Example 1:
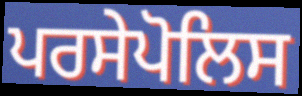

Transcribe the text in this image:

ਪਰਸੇਪੋਲਿਸ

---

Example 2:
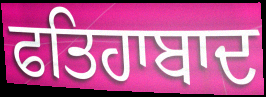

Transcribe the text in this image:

ਫਤਿਹਾਬਾਦ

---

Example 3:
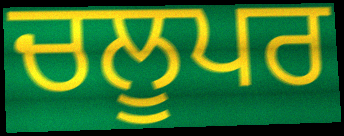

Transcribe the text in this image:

ਚਲੂਪਰ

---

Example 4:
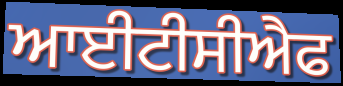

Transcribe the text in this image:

ਆਈਟੀਸੀਐਫ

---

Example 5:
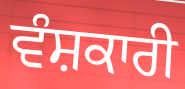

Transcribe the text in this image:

ਵੰਸ਼ਕਾਰੀ